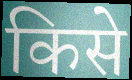
किसे